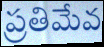
ప్రతిమేవ